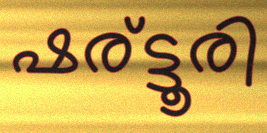
ഷര്ട്ടൂരി